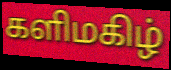
களிமகிழ்